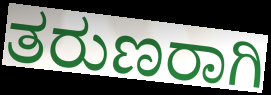
ತರುಣರಾಗಿ